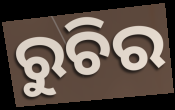
ରୁଚିର